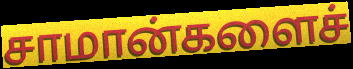
சாமான்களைச்